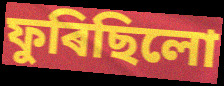
ফুৰিছিলো